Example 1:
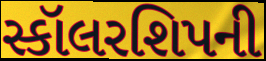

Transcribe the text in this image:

સ્કૉલરશિપની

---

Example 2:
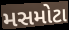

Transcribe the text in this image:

મસમોટા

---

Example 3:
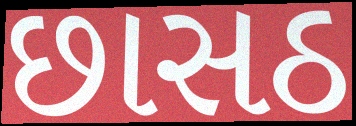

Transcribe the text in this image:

છાસઠ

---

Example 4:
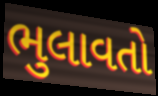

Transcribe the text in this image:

ભુલાવતો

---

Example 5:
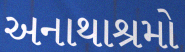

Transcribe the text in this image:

અનાથાશ્રમો